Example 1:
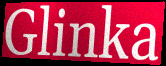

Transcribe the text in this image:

Glinka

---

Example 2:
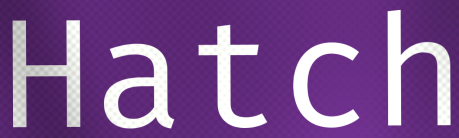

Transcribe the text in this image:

Hatch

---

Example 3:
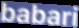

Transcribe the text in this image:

babari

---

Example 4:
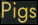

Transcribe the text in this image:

Pigs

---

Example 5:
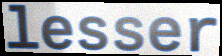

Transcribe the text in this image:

lesser